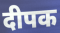
दीपक